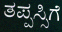
ತಪ್ಪಸ್ಸಿಗೆ